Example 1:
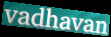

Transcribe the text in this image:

vadhavan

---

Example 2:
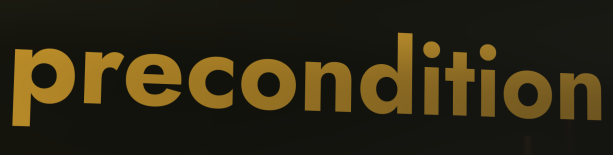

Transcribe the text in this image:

precondition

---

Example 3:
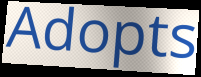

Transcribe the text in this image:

Adopts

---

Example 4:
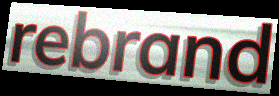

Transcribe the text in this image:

rebrand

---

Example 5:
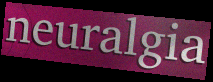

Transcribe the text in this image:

neuralgia